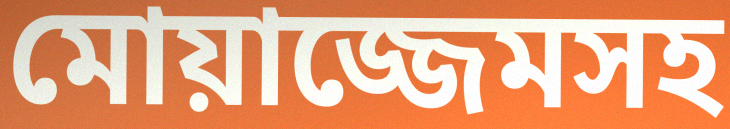
মোয়াজ্জেমসহ